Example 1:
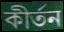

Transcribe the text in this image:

কীর্তন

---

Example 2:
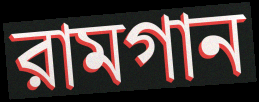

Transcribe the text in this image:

রামগান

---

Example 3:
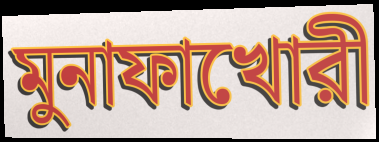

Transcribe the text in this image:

মুনাফাখোরী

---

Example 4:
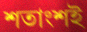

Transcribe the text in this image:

শতাংশই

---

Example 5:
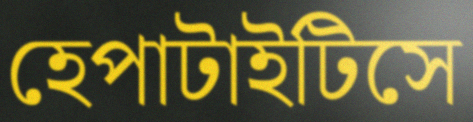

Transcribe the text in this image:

হেপাটাইটিসে